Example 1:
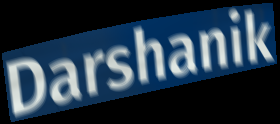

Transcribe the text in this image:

Darshanik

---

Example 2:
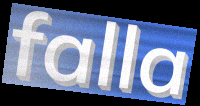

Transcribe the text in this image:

falla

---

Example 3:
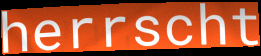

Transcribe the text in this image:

herrscht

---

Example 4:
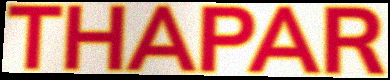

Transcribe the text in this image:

THAPAR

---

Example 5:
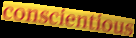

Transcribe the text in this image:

conscientious